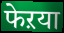
फेऱया